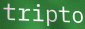
tripto